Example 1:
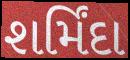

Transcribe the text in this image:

શર્મિંદા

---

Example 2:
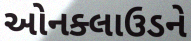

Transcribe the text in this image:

ઓનક્લાઉડને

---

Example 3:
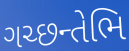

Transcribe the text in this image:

ગચ્છન્તેભિ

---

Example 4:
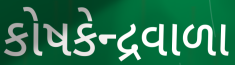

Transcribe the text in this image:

કોષકેન્દ્રવાળા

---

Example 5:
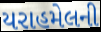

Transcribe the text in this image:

યરાહમેલની